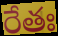
రేతః